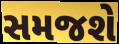
સમજશે